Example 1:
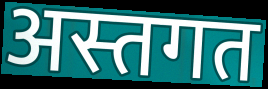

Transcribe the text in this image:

अस्तगत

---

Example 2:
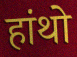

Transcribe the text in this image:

हांथो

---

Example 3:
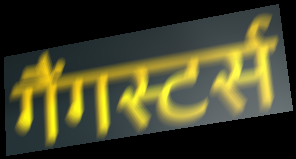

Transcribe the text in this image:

गैंगस्टर्स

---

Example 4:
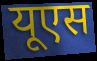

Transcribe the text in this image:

यूएस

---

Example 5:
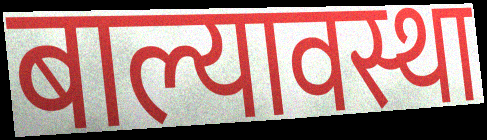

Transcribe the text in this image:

बाल्यावस्था